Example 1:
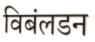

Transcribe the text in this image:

विबंलडन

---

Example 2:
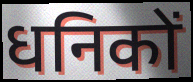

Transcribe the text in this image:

धनिकों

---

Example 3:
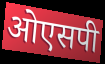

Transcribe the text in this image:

ओएसपी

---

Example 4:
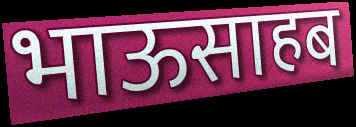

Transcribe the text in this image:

भाऊसाहब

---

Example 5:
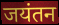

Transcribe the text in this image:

जयंतन